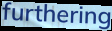
furthering